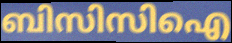
ബിസിസിഐ